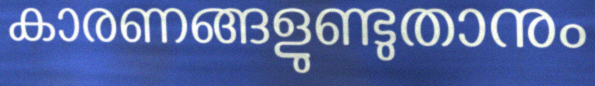
കാരണങ്ങളുണ്ടുതാനും